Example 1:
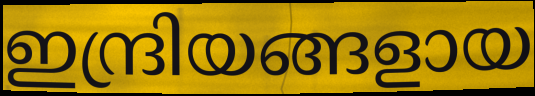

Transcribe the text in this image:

ഇന്ദ്രിയങ്ങളായ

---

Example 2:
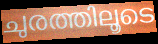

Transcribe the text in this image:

ചുരത്തിലൂടെ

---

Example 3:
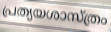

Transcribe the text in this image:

പ്രത്യയശാസ്ത്രം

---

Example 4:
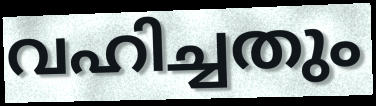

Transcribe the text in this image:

വഹിച്ചതും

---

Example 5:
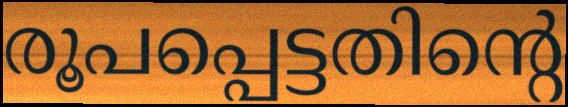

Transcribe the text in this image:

രൂപപ്പെട്ടതിന്റെ